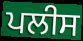
ਪਲੀਸ